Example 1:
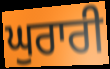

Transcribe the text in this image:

ਘੁਰਾਰੀ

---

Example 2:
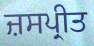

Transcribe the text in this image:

ਜ਼ਸਪ੍ਰੀਤ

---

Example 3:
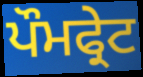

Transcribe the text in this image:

ਪੌਮਫ੍ਰੇਟ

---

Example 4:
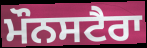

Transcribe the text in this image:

ਮੌਨਸਟੈਰਾ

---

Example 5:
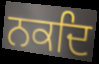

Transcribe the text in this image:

ਨਕਦਿ